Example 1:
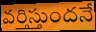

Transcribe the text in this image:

వర్తిస్తుందనే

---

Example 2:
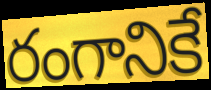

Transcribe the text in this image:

రంగానికే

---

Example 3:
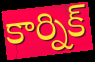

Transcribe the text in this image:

కార్నిక్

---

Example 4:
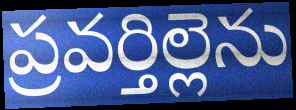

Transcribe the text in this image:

ప్రవర్తిల్లెను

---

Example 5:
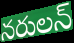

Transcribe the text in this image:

నరులన్